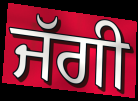
ਜੱਗੀ